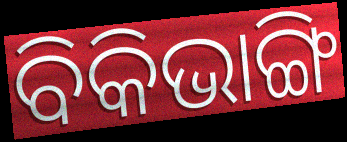
ବିକିଭାଙ୍ଗି